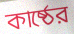
কাষ্ঠের